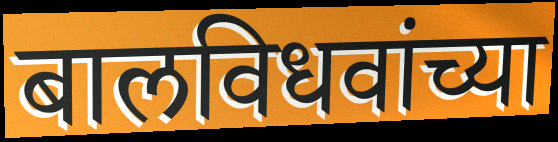
बालविधवांच्या